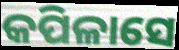
କପିଳାସେ